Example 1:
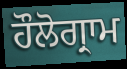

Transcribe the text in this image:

ਹੌਲੋਗ੍ਰਾਮ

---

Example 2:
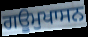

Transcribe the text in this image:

ਗਊਮੁਖਾਸਨ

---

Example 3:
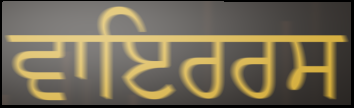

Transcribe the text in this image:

ਵਾਇਰਰਸ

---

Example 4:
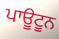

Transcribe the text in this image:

ਪਾਊਟੂਨ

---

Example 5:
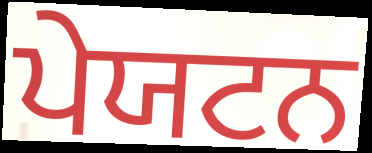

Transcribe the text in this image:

ਪੇਯਟਨ